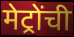
मेट्रोंची